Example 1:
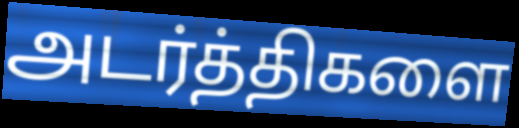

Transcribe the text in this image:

அடர்த்திகளை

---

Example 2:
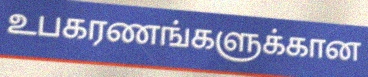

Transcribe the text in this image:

உபகரணங்களுக்கான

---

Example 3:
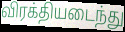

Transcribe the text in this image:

விரக்தியடைந்து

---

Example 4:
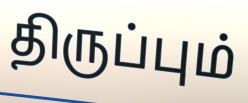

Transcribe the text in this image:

திருப்பும்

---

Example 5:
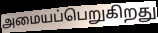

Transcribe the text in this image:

அமையப்பெறுகிறது